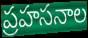
ప్రహసనాల